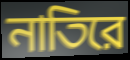
নাতিরে